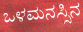
ಒಳಮನಸ್ಸಿನ